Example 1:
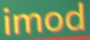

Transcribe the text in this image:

imod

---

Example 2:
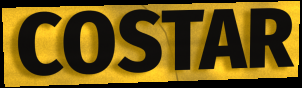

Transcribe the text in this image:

COSTAR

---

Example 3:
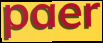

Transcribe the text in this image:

paer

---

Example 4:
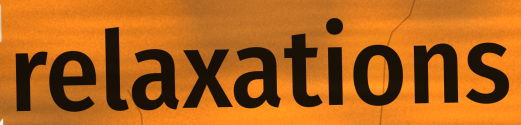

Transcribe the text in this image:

relaxations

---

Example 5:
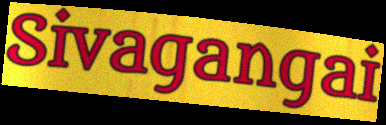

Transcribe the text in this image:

Sivagangai